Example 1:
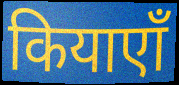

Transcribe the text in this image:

कियाएाँ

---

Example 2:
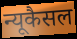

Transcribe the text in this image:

न्यूकैसल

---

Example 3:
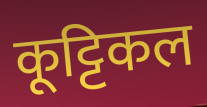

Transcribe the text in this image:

कूट्टिकल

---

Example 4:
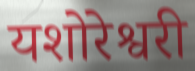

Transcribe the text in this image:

यशोरेश्वरी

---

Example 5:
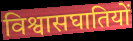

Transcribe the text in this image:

विश्वासघातियों